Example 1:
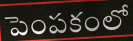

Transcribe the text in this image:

పెంపకంలో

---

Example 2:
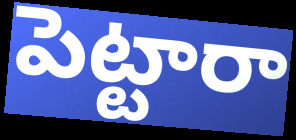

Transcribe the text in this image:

పెట్టారా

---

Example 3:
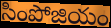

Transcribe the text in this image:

సింపోజియం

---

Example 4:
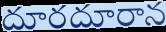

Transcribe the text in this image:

దూరదూరాన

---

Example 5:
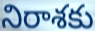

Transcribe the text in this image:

నిరాశకు